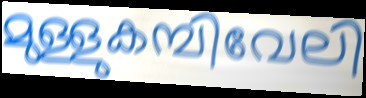
മുള്ളുകമ്പിവേലി